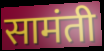
सामंती